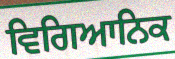
ਵਿਗਿਆਨਿਕ